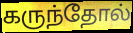
கருந்தோல்